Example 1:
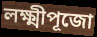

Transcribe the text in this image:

লক্ষ্মীপূজো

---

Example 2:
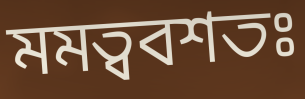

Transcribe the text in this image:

মমত্ববশতঃ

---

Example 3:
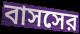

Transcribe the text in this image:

বাসসের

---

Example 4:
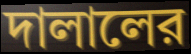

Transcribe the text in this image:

দালালের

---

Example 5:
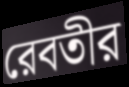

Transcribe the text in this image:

রেবতীর